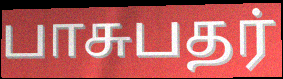
பாசுபதர்